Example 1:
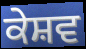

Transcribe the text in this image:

ਕੇਸ਼ਵ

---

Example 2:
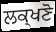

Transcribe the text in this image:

ਲਕ੍ਖਣੋ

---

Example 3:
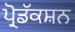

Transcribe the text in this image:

ਪ੍ਰੋਡੱਕਸ਼ਨ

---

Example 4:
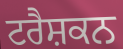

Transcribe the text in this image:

ਟਰੈਸ਼ਕਨ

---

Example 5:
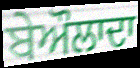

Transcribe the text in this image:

ਬੇਔਲਾਦਾ